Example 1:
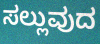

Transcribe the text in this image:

ಸಲ್ಲುವುದ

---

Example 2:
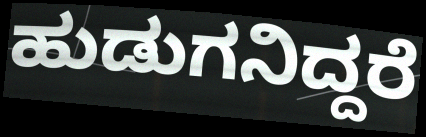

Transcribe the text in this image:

ಹುಡುಗನಿದ್ದರೆ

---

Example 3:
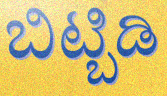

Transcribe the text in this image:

ಬಿಟ್ಬಿಡಿ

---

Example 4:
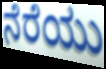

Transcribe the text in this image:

ನೆರೆಯು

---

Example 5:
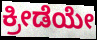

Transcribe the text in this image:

ಕ್ರೀಡೆಯೇ